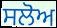
ਸਲੋਅ